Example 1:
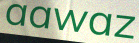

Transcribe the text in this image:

aawaz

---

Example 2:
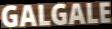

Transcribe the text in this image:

GALGALE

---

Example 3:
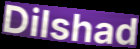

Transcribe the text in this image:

Dilshad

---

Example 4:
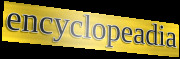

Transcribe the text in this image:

encyclopeadia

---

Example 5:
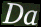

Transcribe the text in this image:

Da